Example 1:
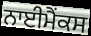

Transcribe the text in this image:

ਨਾਈਮੈਂਕਸ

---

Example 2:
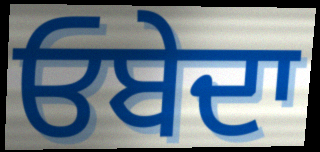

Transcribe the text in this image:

ਓਬੇਦਾ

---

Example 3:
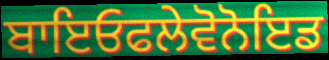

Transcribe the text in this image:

ਬਾਇਓਫਲੇਵੋਨੋਇਡ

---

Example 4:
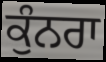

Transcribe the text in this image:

ਕੁੰਨਰਾ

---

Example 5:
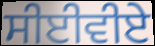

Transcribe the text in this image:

ਸੀਈਵੀਏ